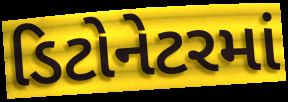
ડિટોનેટરમાં